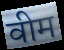
वीम